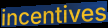
incentives